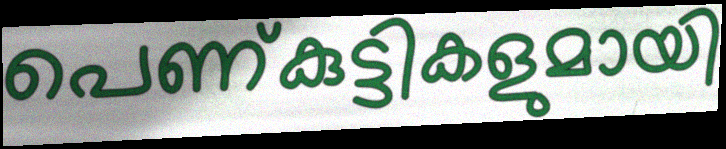
പെണ്കുട്ടികളുമായി